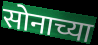
सोनाच्या